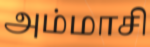
அம்மாசி